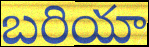
బరియా